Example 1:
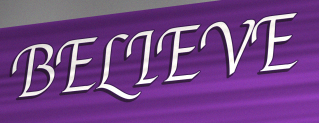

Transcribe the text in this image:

BELIEVE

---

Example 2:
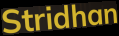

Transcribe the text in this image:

Stridhan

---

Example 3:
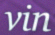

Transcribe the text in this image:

vin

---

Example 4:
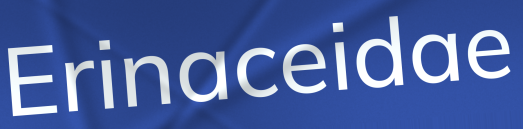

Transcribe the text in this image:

Erinaceidae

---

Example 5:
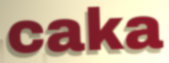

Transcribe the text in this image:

caka